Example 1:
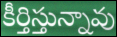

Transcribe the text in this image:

కీర్తిస్తున్నావు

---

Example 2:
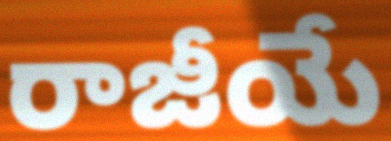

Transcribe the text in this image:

రాజీయే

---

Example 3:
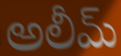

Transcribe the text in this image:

అలీమ్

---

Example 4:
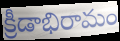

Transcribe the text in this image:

క్రీడాభిరామం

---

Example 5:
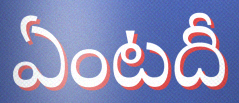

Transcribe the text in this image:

ఏంటదీ